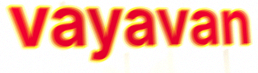
vayavan